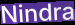
Nindra